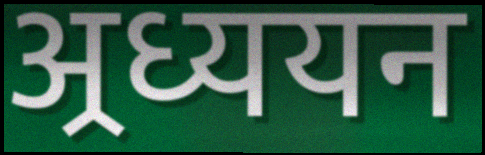
अ्रध्ययन